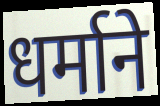
धर्माने